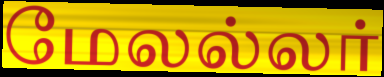
மேலல்லர்